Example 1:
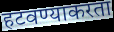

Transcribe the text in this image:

हटवण्याकरता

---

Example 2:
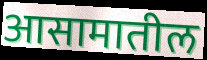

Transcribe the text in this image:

आसामातील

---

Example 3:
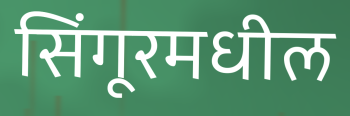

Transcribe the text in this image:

सिंगूरमधील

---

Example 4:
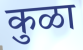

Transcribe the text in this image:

कुळा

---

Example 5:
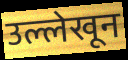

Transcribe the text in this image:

उल्लेखून